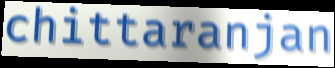
chittaranjan